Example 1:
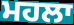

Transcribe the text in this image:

ਮਹਲਾ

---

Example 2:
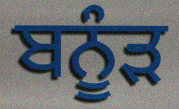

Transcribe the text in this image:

ਬਨੂੰੜ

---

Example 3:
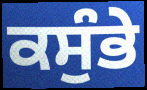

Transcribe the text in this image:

ਕਸੁੰਭੇ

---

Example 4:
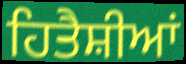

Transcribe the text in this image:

ਹਿਤੈਸ਼ੀਆਂ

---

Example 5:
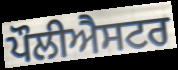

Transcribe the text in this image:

ਪੌਲੀਐਸਟਰ